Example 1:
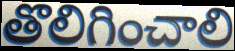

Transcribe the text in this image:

తొలిగించాలి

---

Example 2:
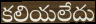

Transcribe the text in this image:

కలియలేదు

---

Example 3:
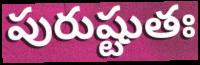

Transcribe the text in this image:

పురుష్టుతః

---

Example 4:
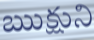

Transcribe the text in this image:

ఋక్షుని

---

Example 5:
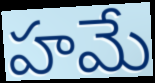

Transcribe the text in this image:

హమే